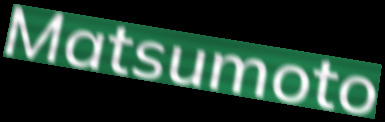
Matsumoto